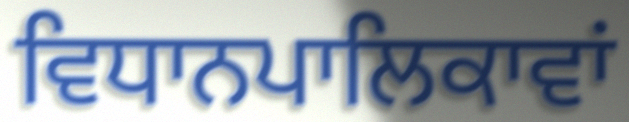
ਵਿਧਾਨਪਾਲਿਕਾਵਾਂ